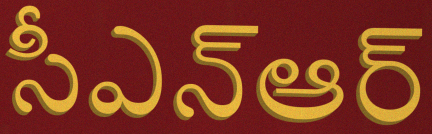
సీఎన్ఆర్